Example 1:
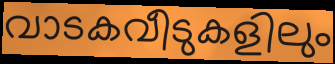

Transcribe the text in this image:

വാടകവീടുകളിലും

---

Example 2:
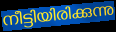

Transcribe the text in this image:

നീട്ടിയിരിക്കുന്നു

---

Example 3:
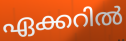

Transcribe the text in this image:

ഏക്കറിൽ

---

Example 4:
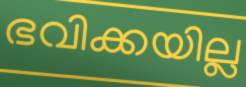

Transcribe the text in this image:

ഭവിക്കയില്ല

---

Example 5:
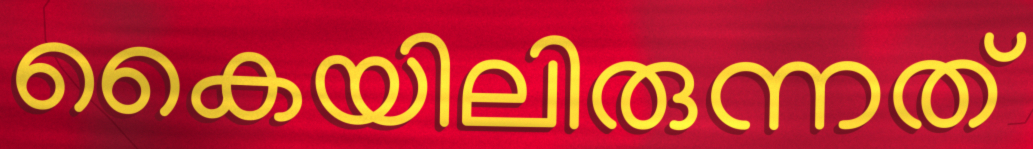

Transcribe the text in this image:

കൈയിലിരുന്നത്